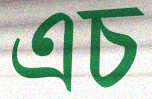
এচ